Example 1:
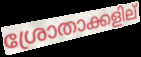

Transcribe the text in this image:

ശ്രോതാക്കളില്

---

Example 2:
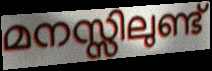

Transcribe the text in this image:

മനസ്സിലുണ്ട്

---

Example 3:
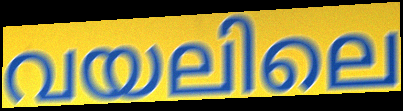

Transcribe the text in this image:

വയലിലെ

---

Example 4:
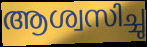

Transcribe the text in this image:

ആശ്വസിച്ചു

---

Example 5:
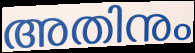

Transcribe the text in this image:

അതിനും